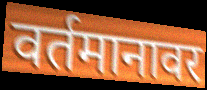
वर्तमानावर